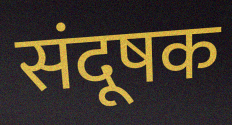
संदूषक